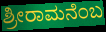
ಶ್ರೀರಾಮನೆಂಬ